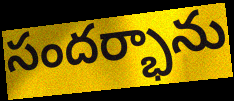
సందర్భాను